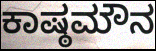
ಕಾಷ್ಠಮೌನ